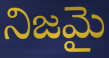
నిజమై